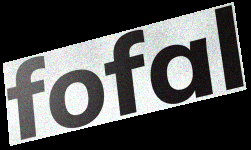
fofal